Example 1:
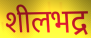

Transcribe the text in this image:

शीलभद्र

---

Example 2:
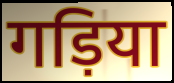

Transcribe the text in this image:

गड़िया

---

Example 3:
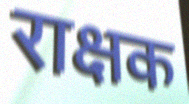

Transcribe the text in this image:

राक्षक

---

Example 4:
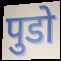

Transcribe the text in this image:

पुडो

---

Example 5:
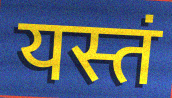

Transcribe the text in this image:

यस्तं